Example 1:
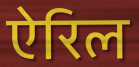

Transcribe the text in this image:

ऐरिल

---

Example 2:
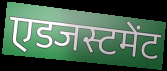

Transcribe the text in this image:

एडजस्‍टमेंट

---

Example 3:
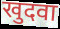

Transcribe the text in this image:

खुदवा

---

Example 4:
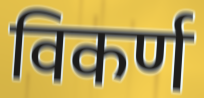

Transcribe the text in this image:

विकर्ण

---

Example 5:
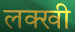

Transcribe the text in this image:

लक्खी